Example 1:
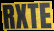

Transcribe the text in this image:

RXTE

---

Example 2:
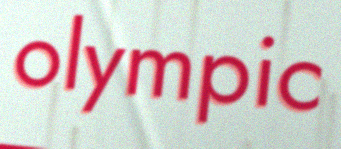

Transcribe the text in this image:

olympic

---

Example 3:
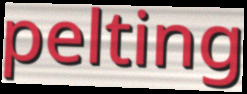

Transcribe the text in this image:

pelting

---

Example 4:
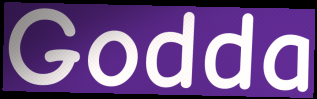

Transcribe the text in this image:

Godda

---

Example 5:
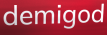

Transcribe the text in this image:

demigod